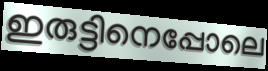
ഇരുട്ടിനെപ്പോലെ